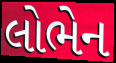
લોભેન